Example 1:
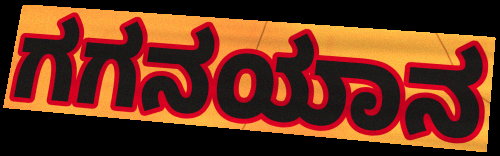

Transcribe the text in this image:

ಗಗನಯಾನ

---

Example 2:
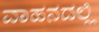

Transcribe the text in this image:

ವಾಹನದಲ್ಲಿ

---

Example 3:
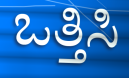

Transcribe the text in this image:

ಒತ್ತಿಸಿ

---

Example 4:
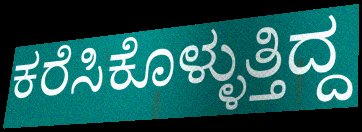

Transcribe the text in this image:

ಕರೆಸಿಕೊಳ್ಳುತ್ತಿದ್ದ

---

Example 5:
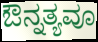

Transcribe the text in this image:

ಔನ್ನತ್ಯವೂ